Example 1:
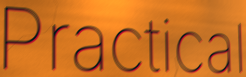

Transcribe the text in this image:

Practical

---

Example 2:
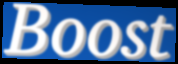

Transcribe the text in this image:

Boost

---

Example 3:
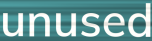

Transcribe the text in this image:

unused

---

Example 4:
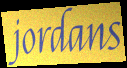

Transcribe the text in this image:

jordans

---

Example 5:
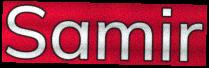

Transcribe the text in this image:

Samir